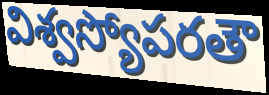
విశ్వస్యోపరతౌ